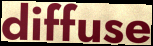
diffuse